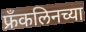
फ्रँकलिनच्या